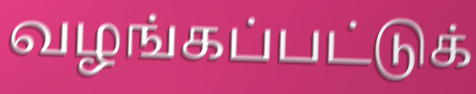
வழங்கப்பட்டுக்